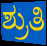
ಶ್ರುತಿ